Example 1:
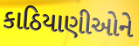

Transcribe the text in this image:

કાઠિયાણીઓને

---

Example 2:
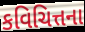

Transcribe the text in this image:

કવિચિત્તના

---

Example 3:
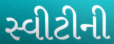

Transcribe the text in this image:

સ્વીટીની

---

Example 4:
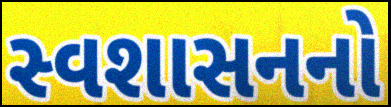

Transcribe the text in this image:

સ્વશાસનનો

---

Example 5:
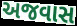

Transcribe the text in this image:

અજવાસ